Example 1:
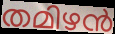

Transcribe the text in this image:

തമിഴൻ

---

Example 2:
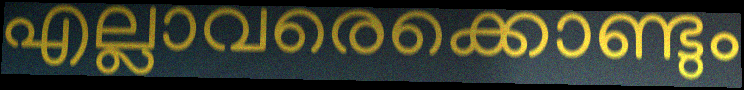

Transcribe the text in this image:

എല്ലാവരെക്കൊണ്ടും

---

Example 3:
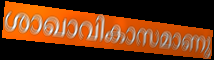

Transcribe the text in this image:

ശാഖാവികാസമാണു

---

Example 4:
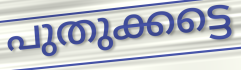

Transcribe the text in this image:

പുതുക്കട്ടെ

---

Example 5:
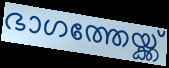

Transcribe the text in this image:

ഭാഗത്തേയ്ക്ക്